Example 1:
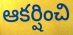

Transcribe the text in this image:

ఆకర్షించి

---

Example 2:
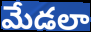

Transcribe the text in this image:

మేడలా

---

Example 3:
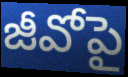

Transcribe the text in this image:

జీవోపై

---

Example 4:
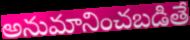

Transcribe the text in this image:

అనుమానించబడితే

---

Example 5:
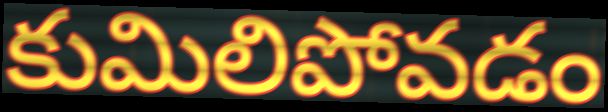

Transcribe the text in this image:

కుమిలిపోవడం